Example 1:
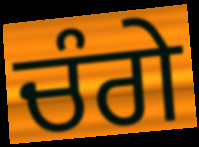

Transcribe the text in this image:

ਚੰਗੇ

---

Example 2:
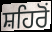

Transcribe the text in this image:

ਸ਼ਹਿਰੋਂ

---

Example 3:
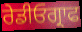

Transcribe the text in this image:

ਰੇਡੀਓਗ੍ਰਾਫ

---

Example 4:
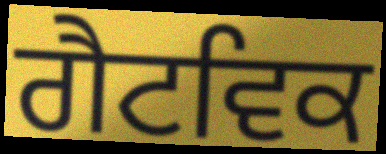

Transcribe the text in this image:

ਗੈਟਵਿਕ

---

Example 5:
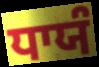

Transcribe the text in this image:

ਧਾਯੰ